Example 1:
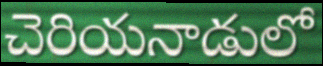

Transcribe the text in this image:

చెరియనాడులో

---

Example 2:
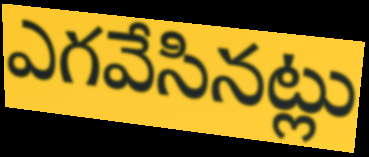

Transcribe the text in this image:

ఎగవేసినట్లు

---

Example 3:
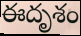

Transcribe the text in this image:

ఈదృశం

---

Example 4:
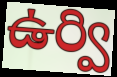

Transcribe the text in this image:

ఉర్వి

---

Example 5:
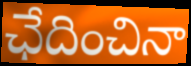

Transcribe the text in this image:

ఛేదించినా